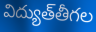
విద్యుత్‌తీగల